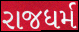
રાજધર્મ